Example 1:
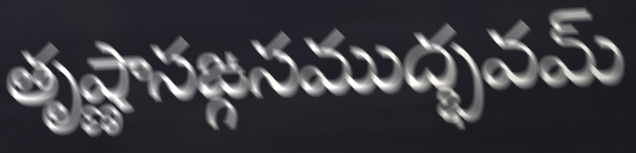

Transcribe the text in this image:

తృష్ణాసఙ్గసముద్భవమ్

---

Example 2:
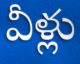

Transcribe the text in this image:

వీళ్లు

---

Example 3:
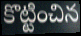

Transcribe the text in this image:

కొట్టించిన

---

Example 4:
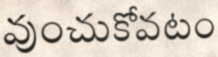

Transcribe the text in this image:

వుంచుకోవటం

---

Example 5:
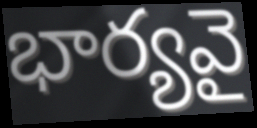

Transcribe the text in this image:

భార్యవై